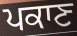
ਪਕਾਣ